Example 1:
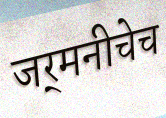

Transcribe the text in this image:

जर्मनीचेच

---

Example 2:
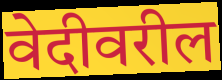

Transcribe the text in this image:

वेदीवरील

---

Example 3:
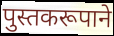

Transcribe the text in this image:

पुस्तकरूपाने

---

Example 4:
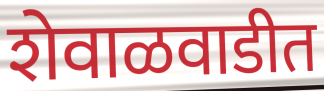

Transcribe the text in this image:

शेवाळवाडीत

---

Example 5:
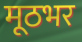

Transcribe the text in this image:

मूठभर